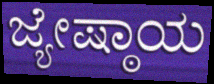
ಜ್ಯೇಷ್ಠಾಯ